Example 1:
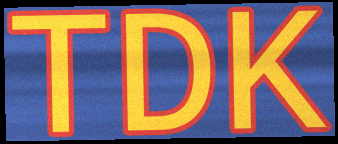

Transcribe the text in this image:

TDK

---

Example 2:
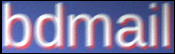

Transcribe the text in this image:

bdmail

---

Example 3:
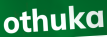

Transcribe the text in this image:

othuka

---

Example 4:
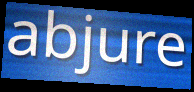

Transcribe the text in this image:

abjure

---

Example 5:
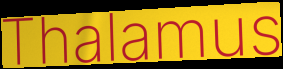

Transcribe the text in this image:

Thalamus